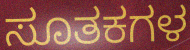
ಸೂತಕಗಳ